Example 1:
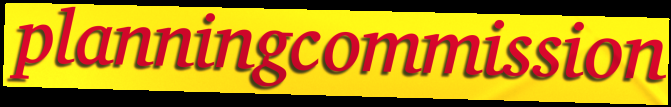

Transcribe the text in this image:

planningcommission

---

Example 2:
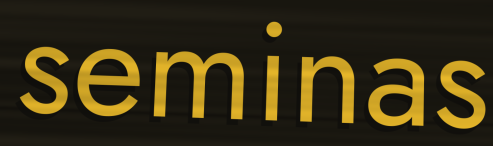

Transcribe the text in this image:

seminas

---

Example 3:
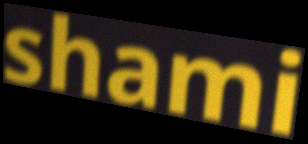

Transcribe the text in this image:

shami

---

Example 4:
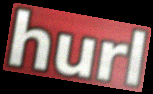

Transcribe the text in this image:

hurl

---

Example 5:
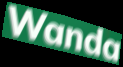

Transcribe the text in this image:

Wanda